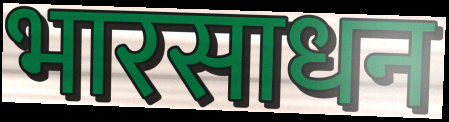
भारसाधन